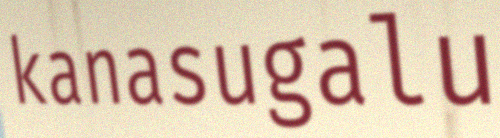
kanasugalu